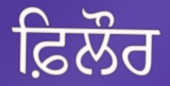
ਫ਼ਿਲੌਰ